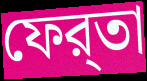
ফের্‌তা